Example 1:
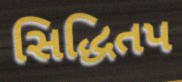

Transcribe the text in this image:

સિદ્ધિતપ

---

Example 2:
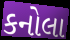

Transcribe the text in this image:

કનોલા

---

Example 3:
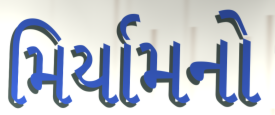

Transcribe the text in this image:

મિર્યામનો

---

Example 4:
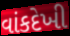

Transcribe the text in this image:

વાંકદેખી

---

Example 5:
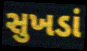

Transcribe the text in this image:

સુખડાં